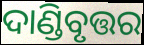
ଦାଣ୍ଡିବୃତ୍ତର